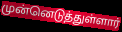
முன்னெடுத்துள்ளார்